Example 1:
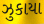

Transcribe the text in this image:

ઝુકાયા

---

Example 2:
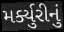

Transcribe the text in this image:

મર્ક્યુરીનું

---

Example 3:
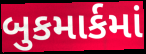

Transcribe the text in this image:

બુકમાર્કમાં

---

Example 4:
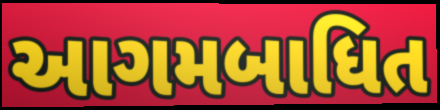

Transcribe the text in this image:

આગમબાધિત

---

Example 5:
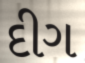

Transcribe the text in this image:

દીગ